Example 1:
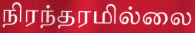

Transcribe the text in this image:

நிரந்தரமில்லை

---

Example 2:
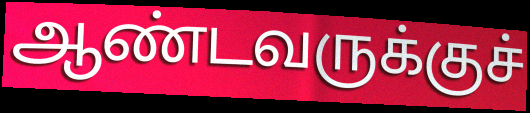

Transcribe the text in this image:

ஆண்டவருக்குச்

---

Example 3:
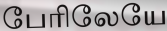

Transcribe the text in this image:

பேரிலேயே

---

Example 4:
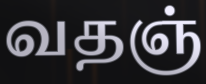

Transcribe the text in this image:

வதஞ்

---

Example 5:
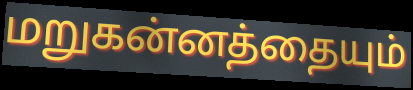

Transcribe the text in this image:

மறுகன்னத்தையும்